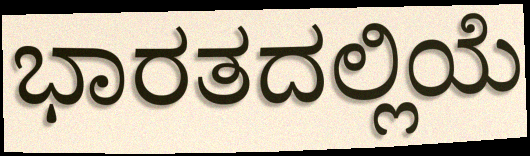
ಭಾರತದಲ್ಲಿಯೆ